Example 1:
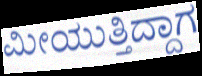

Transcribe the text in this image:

ಮೀಯುತ್ತಿದ್ದಾಗ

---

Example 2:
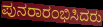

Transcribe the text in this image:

ಪುನರಾರಂಭಿಸಿದರು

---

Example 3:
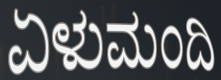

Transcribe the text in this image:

ಏಳುಮಂದಿ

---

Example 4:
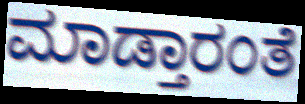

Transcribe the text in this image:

ಮಾಡ್ತಾರಂತೆ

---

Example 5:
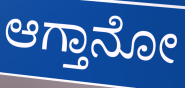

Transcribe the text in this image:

ಆಗ್ತಾನೋ